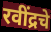
रवींद्रचे